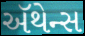
ઍથેન્સ